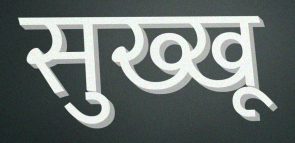
सुख्खू